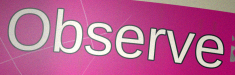
Observe